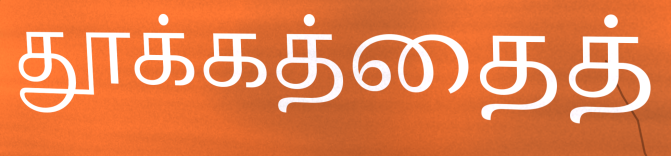
தூக்கத்தைத்